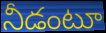
నీడంటూ